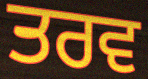
ਤਰਵ